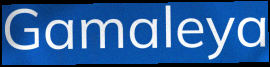
Gamaleya